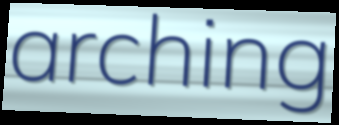
arching